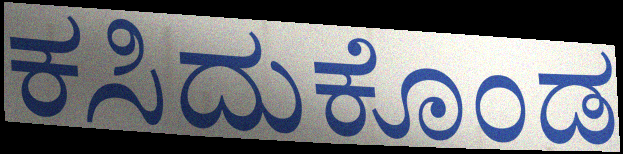
ಕಸಿದುಕೊಂಡ